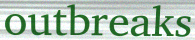
outbreaks